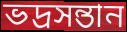
ভদ্রসন্তান